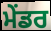
ਮੇਂਡਰ